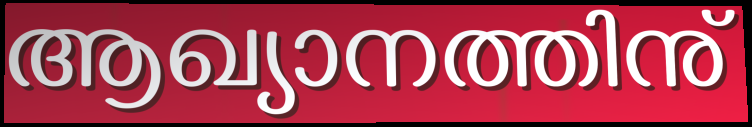
ആഖ്യാനത്തിനു്